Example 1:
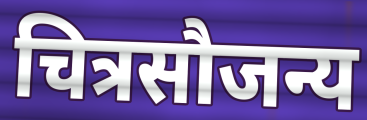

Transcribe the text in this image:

चित्रसौजन्य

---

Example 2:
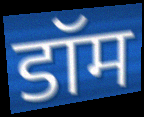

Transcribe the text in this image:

डॉम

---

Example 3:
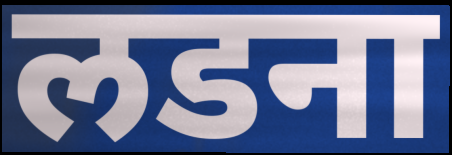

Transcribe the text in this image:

लडना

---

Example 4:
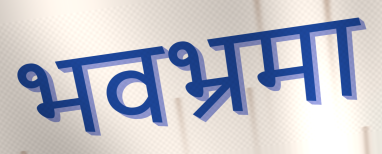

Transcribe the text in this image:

भवभ्रमा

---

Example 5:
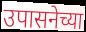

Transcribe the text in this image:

उपासनेच्या